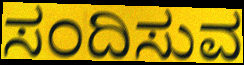
ಸಂದಿಸುವ